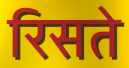
रिसते